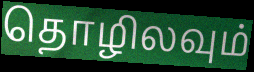
தொழிலவும்